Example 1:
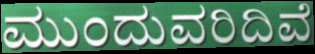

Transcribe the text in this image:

ಮುಂದುವರಿದಿವೆ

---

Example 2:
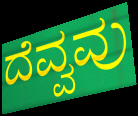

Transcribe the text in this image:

ದೆವ್ವವು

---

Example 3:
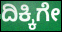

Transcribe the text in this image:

ದಿಕ್ಕಿಗೇ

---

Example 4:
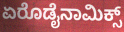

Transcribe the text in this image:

ಏರೊಡೈನಾಮಿಕ್ಸ್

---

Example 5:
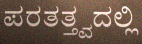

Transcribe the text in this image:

ಪರತತ್ತ್ವದಲ್ಲಿ